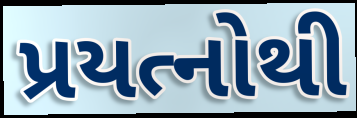
પ્રયત્નોથી